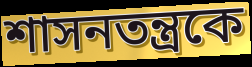
শাসনতন্ত্রকে